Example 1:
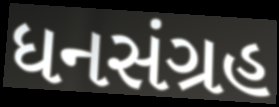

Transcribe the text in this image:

ધનસંગ્રહ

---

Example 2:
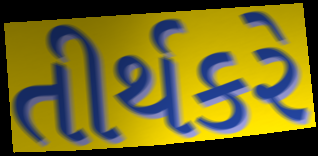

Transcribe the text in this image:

તીર્થકરે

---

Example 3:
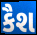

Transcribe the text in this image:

કૈશ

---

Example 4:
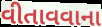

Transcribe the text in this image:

વીતાવવાના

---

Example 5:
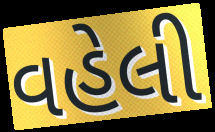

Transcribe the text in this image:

વહેલી